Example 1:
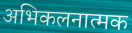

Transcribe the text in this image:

अभिकलनात्मक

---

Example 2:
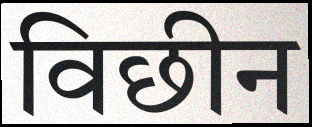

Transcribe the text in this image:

विछीन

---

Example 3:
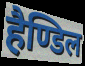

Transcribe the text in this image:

हैण्डिल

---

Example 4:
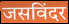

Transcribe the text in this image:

जसविंदर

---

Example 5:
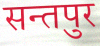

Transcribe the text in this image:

सन्तपुर